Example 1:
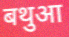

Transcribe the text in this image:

बथुआ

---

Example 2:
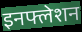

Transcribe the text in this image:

इनफ्लेशन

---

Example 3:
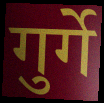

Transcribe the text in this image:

गुर्गे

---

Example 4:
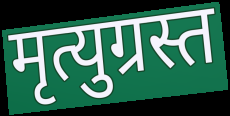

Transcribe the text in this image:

मृत्युग्रस्त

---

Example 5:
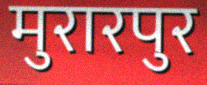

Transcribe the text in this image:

मुरारपुर